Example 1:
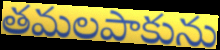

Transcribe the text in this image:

తమలపాకును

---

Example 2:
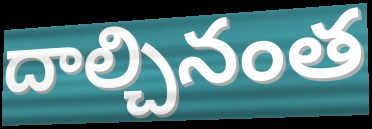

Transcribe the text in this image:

దాల్చినంత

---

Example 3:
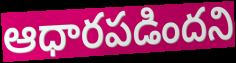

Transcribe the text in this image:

ఆధారపడిందని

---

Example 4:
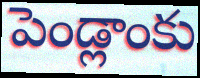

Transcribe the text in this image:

పెండ్లాంకు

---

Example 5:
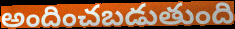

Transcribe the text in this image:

అందించబడుతుంది